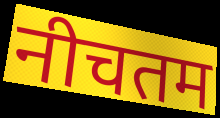
नीचतम